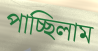
পাচ্ছিলাম